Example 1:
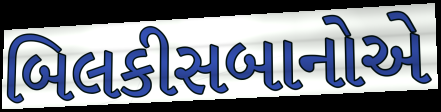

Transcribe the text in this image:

બિલકીસબાનોએ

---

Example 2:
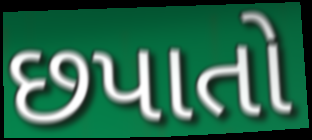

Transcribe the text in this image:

છપાતો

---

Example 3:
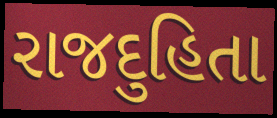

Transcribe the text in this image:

રાજદુહિતા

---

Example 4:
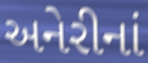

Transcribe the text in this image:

અનેરીનાં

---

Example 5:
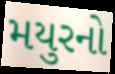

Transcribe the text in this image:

મયુરનો